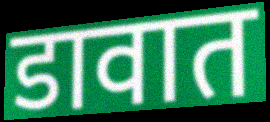
डावात